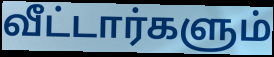
வீட்டார்களும்